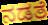
ನಡತೆ